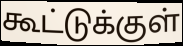
கூட்டுக்குள்